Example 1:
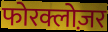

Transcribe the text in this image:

फोरक्लोज़र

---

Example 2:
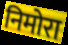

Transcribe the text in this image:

निमोरा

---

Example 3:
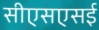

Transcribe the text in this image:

सीएसएसई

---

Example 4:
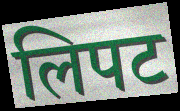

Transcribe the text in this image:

लिपट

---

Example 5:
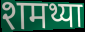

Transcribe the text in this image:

शमथ्या